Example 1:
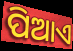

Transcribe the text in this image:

ପିଆଏ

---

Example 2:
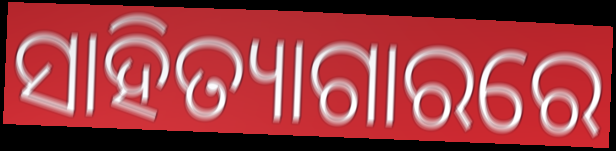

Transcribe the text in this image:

ସାହିତ୍ୟାଗାରରେ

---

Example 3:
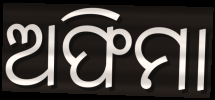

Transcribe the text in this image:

ଅଫିମା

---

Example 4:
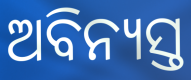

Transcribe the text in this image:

ଅବିନ୍ୟସ୍ତ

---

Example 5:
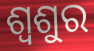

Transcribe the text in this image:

ଶ୍ଵଶୁର